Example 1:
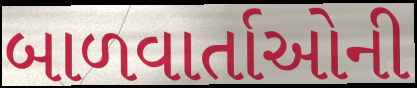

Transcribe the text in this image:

બાળવાર્તાઓની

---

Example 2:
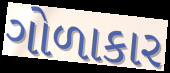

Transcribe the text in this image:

ગોળાકાર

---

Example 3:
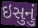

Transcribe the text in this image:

ઇસુનું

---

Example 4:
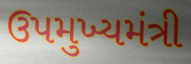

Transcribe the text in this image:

ઉપમુખ્યમંત્રી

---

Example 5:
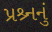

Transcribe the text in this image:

પ્રશ્ર્નનું